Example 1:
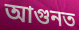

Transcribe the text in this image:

আগুনত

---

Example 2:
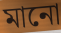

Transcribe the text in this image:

মানো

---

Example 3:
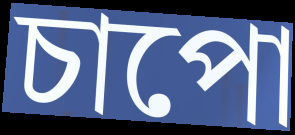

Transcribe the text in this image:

চাপো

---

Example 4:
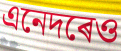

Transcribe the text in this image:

এনেদৰেও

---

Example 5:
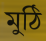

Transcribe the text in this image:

মুঠি